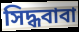
সিদ্ধবাবা